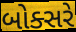
બોક્સરે